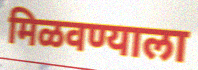
मिळवण्याला